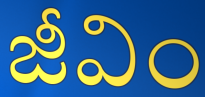
జీవిం